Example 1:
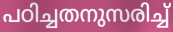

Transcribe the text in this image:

പഠിച്ചതനുസരിച്ച്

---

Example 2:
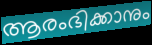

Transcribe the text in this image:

ആരംഭിക്കാനും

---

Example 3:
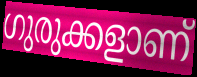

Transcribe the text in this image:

ഗുരുക്കളാണ്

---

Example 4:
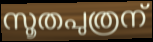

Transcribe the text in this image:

സൂതപുത്രന്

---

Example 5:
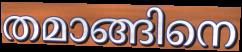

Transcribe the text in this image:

തമാങ്ങിനെ